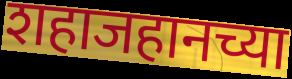
शहाजहानच्या